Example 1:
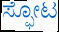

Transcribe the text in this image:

ಸ್ಫೋಟ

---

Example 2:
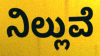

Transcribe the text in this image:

ನಿಲ್ಲುವೆ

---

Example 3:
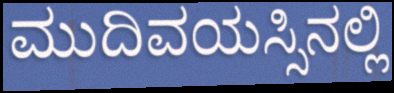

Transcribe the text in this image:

ಮುದಿವಯಸ್ಸಿನಲ್ಲಿ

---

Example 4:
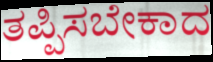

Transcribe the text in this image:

ತಪ್ಪಿಸಬೇಕಾದ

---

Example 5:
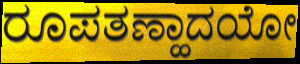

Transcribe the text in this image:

ರೂಪತಣ್ಹಾದಯೋ